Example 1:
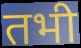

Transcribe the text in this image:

तभी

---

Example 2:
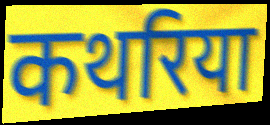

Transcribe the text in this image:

कथरिया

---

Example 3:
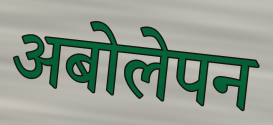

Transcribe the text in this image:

अबोलेपन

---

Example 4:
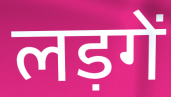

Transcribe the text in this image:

लड़गें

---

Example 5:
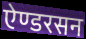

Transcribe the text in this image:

ऐण्डरसन